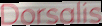
Dorsalis